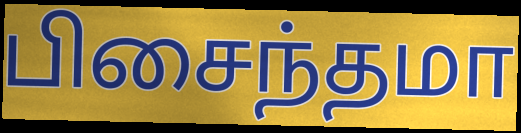
பிசைந்தமா